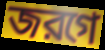
জরগে